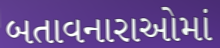
બતાવનારાઓમાં